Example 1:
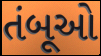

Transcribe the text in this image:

તંબૂઓ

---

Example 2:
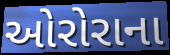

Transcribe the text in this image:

ઓરોરાના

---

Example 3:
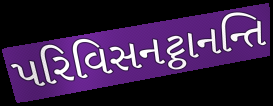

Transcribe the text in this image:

પરિવિસનટ્ઠાનન્તિ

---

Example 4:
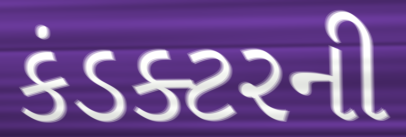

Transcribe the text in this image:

કંડક્ટરની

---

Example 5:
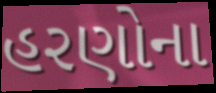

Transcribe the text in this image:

હરણોના